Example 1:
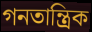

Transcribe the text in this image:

গনতান্ত্ৰিক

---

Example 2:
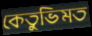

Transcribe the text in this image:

কেতুভিমত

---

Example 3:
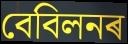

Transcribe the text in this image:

বেবিলনৰ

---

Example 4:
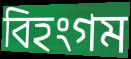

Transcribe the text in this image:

বিহংগম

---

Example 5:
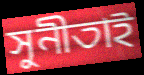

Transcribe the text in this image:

সুনীতাই